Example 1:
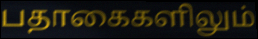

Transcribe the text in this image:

பதாகைகளிலும்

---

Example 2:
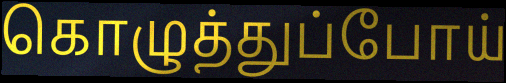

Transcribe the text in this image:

கொழுத்துப்போய்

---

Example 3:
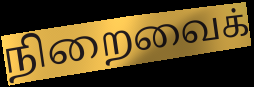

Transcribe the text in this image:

நிறைவைக்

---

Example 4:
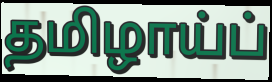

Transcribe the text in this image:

தமிழாய்ப்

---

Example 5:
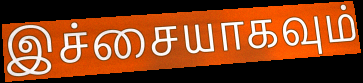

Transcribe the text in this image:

இச்சையாகவும்